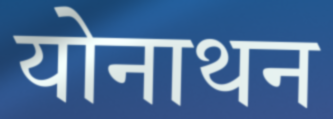
योनाथन